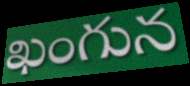
ఖంగున